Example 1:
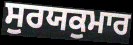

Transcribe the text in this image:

ਸੁਰਯਕੁਮਾਰ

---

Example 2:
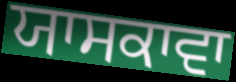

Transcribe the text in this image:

ਯਾਸਕਾਵਾ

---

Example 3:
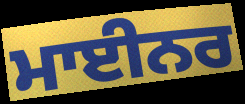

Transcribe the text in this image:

ਮਾਈਨਰ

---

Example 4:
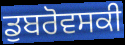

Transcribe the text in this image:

ਡੁਬਰੋਵਸਕੀ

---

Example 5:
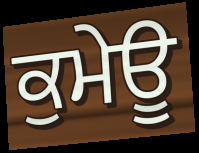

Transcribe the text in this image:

ਕੁਮੇਊ